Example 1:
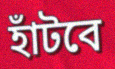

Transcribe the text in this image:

হাঁটবে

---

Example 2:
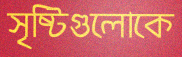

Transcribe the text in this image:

সৃষ্টিগুলোকে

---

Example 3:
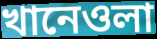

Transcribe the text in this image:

খানেওলা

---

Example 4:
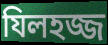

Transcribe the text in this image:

যিলহজ্জ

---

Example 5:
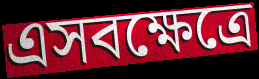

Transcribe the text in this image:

এসবক্ষেত্রে